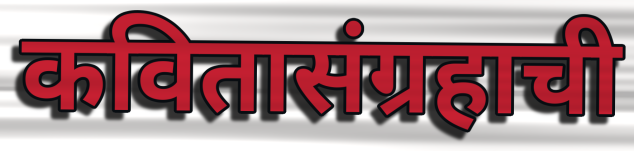
कवितासंग्रहाची